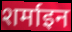
शर्माइन